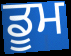
ਡੂਮ